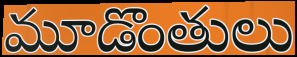
మూడొంతులు